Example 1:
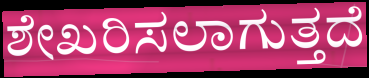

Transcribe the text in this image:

ಶೇಖರಿಸಲಾಗುತ್ತದೆ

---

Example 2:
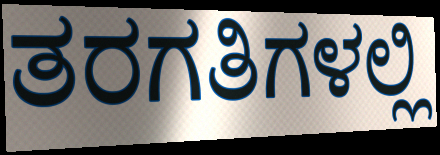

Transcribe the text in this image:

ತರಗತಿಗಳಲ್ಲಿ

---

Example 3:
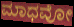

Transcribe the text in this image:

ಮಾಧವೋ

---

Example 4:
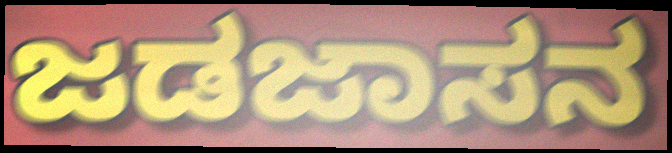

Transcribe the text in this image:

ಜಡಜಾಸನ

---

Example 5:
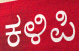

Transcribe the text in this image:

ಕಳಿಪಿ